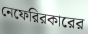
নেফেরিরকারের